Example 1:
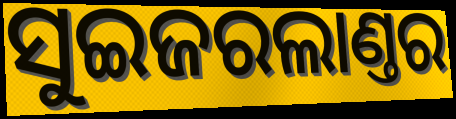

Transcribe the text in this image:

ସୁଇଜରଲାଣ୍ତର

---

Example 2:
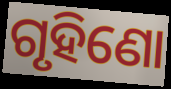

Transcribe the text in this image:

ଗୃହିଣୋ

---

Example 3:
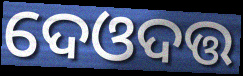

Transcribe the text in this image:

ଦେଓଦତ୍ତ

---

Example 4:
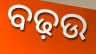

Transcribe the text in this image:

ବଢ଼ଉ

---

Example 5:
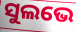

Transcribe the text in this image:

ସୁଲଭେ